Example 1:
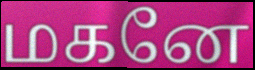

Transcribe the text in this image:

மகனே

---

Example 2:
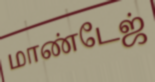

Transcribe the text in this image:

மாண்டேஜ்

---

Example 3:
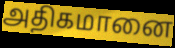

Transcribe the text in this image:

அதிகமானை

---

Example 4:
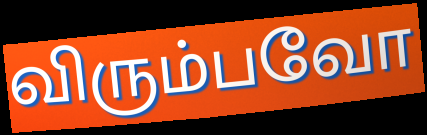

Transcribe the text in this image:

விரும்பவோ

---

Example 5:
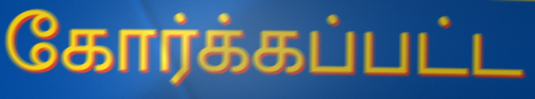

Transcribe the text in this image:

கோர்க்கப்பட்ட